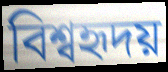
বিশ্বহৃদয়